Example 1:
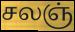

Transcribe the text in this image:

சலஞ்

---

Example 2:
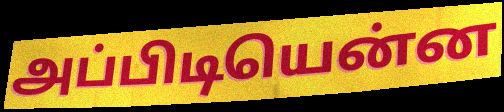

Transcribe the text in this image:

அப்பிடியென்ன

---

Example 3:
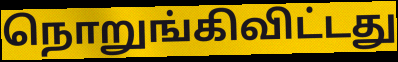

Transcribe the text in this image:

நொறுங்கிவிட்டது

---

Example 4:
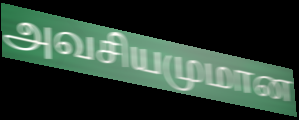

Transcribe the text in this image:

அவசியமுமான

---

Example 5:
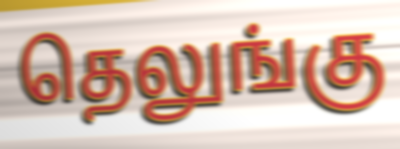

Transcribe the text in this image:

தெலுங்கு